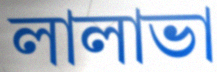
লালাভা